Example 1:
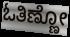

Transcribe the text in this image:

ಓತಿಣ್ಣೋ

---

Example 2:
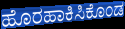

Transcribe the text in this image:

ಹೊರಹಾಕಿಸಿಕೊಂಡ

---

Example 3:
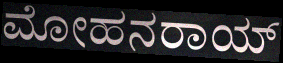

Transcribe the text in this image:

ಮೋಹನರಾಯ್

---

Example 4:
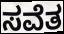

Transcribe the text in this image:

ಸವೆತ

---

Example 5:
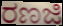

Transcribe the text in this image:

ರಣಜಿ